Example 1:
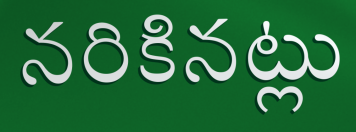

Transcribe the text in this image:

నరికినట్లు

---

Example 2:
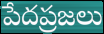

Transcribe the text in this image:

పేదప్రజలు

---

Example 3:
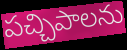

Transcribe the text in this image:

పచ్చిపాలను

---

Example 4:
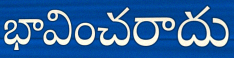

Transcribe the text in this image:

భావించరాదు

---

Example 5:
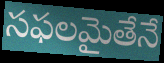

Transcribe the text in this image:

సఫలమైతేనే